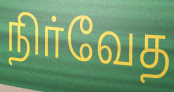
நிர்வேத